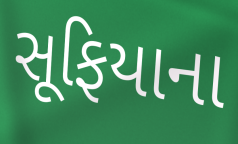
સૂફિયાના